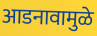
आडनावामुळे